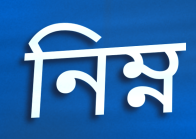
নিম্ন